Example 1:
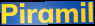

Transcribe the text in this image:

Piramil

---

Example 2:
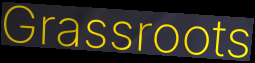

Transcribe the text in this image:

Grassroots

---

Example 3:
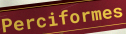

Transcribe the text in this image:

Perciformes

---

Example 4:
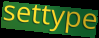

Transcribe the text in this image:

settype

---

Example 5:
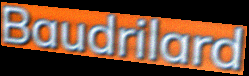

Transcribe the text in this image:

Baudrilard